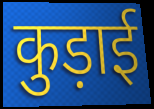
कुड़ाई